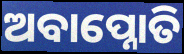
ଅବାପ୍ନୋତି